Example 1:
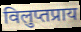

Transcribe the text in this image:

विलुप्तप्राय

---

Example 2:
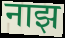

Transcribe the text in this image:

नाझ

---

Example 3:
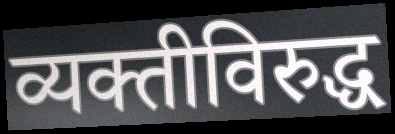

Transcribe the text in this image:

व्यक्तीविरुद्ध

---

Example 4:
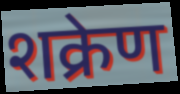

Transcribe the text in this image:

शक्रेण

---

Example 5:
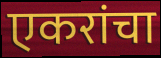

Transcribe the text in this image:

एकरांचा